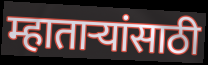
म्हाताऱ्यांसाठी